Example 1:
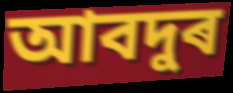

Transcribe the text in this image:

আবদুৰ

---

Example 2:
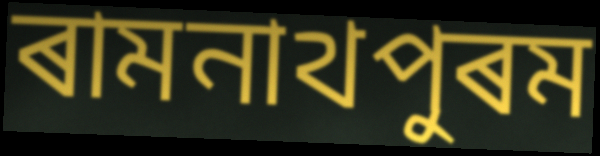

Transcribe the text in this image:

ৰামনাথপুৰম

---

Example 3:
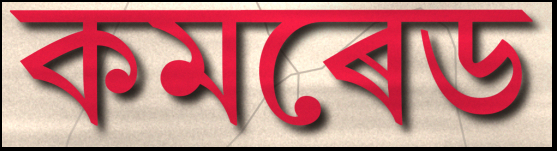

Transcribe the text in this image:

কমৰেড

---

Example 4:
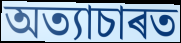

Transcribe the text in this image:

অত্যাচাৰত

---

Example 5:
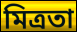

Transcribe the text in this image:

মিত্ৰতা